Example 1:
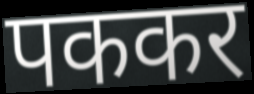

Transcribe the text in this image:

पककर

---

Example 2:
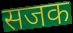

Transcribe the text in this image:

सजक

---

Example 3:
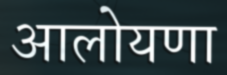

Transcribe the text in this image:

आलोयणा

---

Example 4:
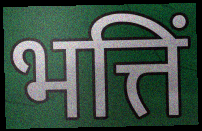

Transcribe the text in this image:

भत्तिं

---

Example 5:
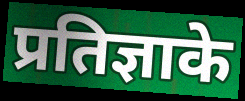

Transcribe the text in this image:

प्रतिज्ञाके